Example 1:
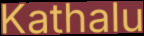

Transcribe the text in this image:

Kathalu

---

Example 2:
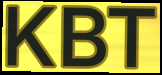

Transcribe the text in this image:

KBT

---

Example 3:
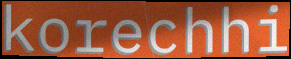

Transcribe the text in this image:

korechhi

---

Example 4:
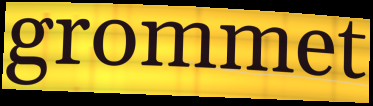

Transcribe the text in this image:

grommet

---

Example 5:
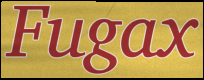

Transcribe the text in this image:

Fugax